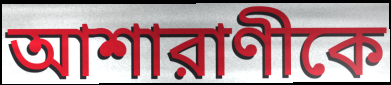
আশারাণীকে